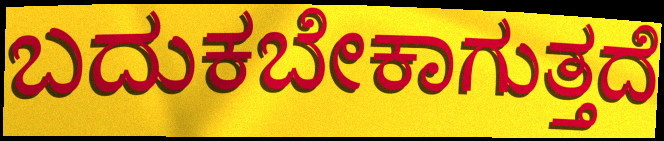
ಬದುಕಬೇಕಾಗುತ್ತದೆ